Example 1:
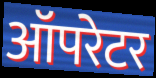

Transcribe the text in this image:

ऑपरेटर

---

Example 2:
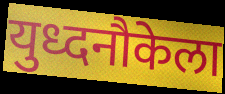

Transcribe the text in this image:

युध्दनौकेला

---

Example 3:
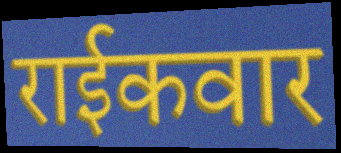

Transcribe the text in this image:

राईकवार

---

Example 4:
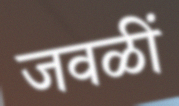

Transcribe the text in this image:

जवळीं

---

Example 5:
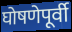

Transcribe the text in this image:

घोषणेपूर्वी